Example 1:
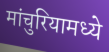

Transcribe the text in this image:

मांचुरियामध्ये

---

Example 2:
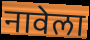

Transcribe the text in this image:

नावेला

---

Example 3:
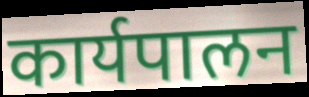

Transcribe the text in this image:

कार्यपालन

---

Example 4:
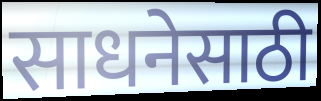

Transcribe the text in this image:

साधनेसाठी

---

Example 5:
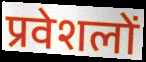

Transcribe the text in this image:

प्रवेशलों